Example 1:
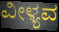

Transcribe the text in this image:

ವೀಳ್ಯವ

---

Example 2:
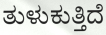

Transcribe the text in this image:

ತುಳುಕುತ್ತಿದೆ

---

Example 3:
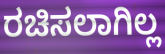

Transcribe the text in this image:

ರಚಿಸಲಾಗಿಲ್ಲ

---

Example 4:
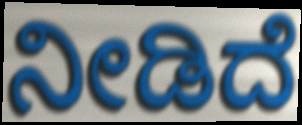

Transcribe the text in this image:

ನೀಡಿದೆ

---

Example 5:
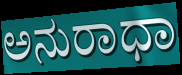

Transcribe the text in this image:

ಅನುರಾಧಾ